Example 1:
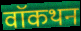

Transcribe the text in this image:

वॉकथन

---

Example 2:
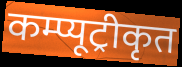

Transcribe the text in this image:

कम्प्यूट्रीकृत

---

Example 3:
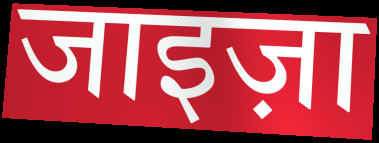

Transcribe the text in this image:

जाइज़ा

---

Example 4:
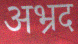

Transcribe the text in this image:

अभ्रद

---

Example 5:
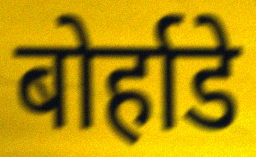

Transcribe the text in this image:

बोर्हाडे